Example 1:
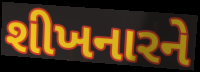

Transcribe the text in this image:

શીખનારને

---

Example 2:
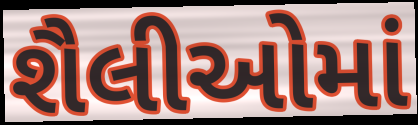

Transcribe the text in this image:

શૈલીઓમાં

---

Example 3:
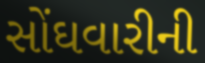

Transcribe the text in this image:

સોંઘવારીની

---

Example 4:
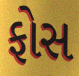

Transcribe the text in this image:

ફોસ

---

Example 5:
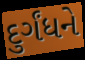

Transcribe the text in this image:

દુર્ગંધને